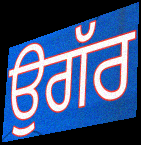
ਉਗੱਰ